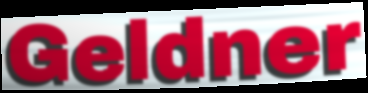
Geldner